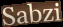
Sabzi